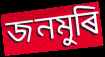
জনমুৰি